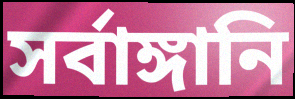
সর্বাঙ্গানি